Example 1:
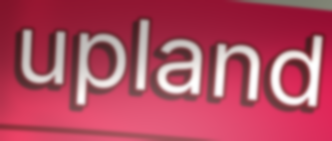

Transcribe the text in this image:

upland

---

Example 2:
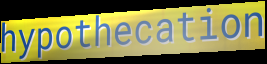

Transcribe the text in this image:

hypothecation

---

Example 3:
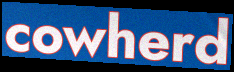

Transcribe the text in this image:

cowherd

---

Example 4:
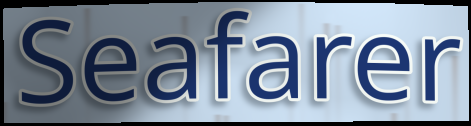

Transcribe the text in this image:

Seafarer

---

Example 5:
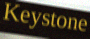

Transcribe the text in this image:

Keystone